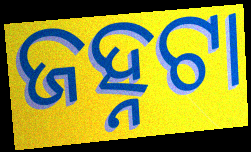
ଜହ୍ନଟା